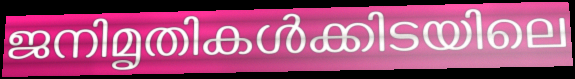
ജനിമൃതികൾക്കിടയിലെ